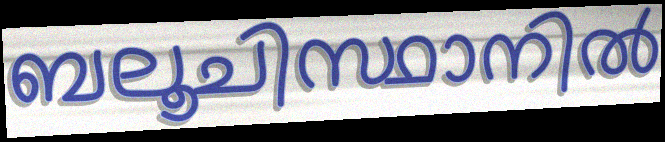
ബലൂചിസ്ഥാനിൽ